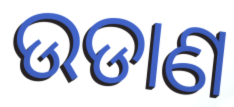
ଉଡାଣ